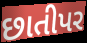
છાતીપર